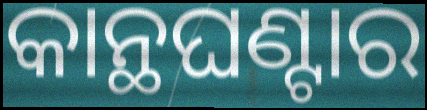
କାନ୍ଥଘଣ୍ଟାର